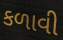
કળાવી